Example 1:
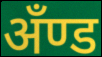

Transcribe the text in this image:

अँण्ड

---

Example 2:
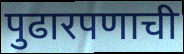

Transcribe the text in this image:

पुढारपणाची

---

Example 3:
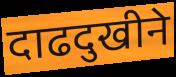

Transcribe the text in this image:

दाढदुखीने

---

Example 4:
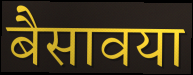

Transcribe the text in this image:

बैसावया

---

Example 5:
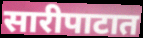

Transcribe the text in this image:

सारीपाटात